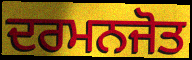
ਦਰਮਨਜੋਤ